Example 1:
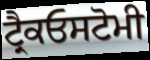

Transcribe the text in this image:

ਟ੍ਰੈਕਓਸਟੋਮੀ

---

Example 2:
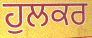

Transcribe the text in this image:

ਹੁਲਕਰ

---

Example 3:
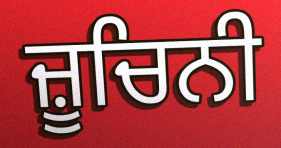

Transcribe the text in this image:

ਜ਼ੂਚਿਨੀ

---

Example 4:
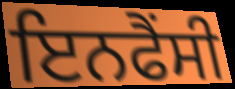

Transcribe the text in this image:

ਇਨਫੈਂਸੀ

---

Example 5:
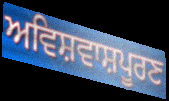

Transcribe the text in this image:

ਅਵਿਸ਼ਵਾਸ਼ਪੂਰਣ